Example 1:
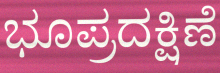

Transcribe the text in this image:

ಭೂಪ್ರದಕ್ಷಿಣೆ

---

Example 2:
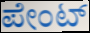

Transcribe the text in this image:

ಪೇಂಟ್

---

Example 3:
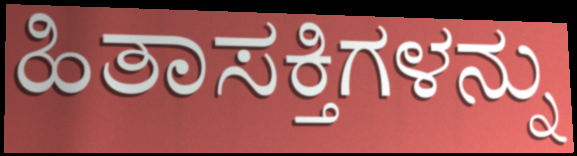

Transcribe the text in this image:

ಹಿತಾಸಕ್ತಿಗಳನ್ನು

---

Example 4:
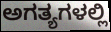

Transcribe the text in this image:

ಅಗತ್ಯಗಳಲ್ಲಿ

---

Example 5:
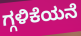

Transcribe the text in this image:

ಗ್ಗಳಿಕೆಯನೆ